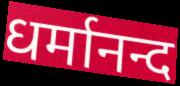
धर्मानन्द